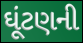
ઘૂંટણની